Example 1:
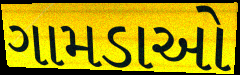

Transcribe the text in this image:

ગામડાઓ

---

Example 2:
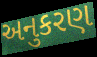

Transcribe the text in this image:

અનુકરણ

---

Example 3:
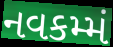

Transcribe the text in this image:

નવકમ્મં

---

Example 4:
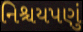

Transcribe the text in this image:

નિશ્ચયપણું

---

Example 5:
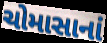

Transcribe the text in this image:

ચોમાસાનાં